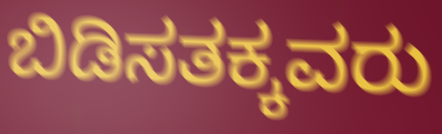
ಬಿಡಿಸತಕ್ಕವರು